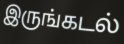
இருங்கடல்